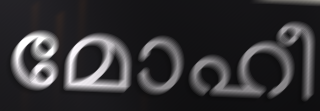
മോഹീ